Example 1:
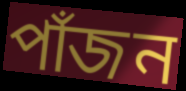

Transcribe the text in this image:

পাঁজন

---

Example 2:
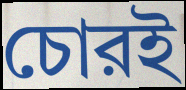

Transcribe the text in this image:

চোরই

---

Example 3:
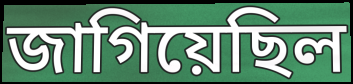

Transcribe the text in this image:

জাগিয়েছিল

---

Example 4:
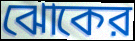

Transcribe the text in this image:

ঝোকের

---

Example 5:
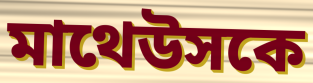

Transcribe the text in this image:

মাথেউসকে